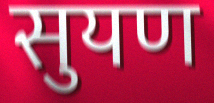
सुयण